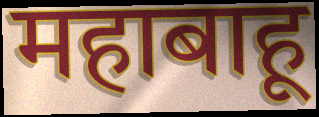
महाबाहू